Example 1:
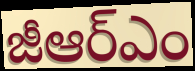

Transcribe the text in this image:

జీఆర్ఎం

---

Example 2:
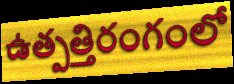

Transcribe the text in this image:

ఉత్పత్తిరంగంలో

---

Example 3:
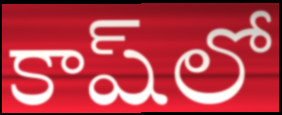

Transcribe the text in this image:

కాష్‌లో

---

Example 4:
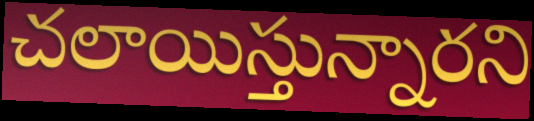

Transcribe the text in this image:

చలాయిస్తున్నారని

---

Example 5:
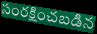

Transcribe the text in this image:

సంరక్షించబడిన